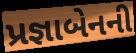
પ્રજ્ઞાબેનની